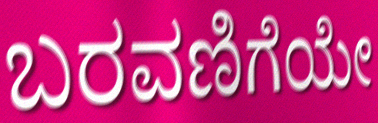
ಬರವಣಿಗೆಯೇ